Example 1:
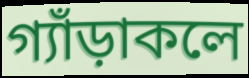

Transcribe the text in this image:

গ্যাঁড়াকলে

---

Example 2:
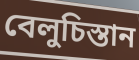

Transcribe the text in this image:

বেলুচিস্তান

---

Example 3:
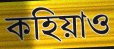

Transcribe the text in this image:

কহিয়াও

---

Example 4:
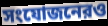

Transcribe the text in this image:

সংযোজনেরও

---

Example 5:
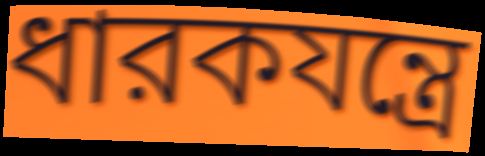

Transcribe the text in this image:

ধারকযন্ত্রে